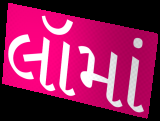
લૉમાં